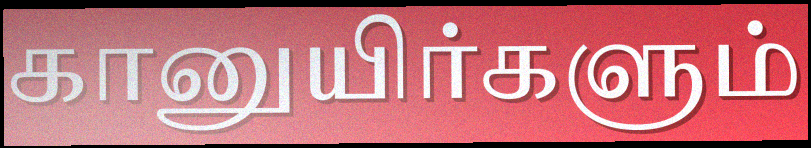
கானுயிர்களும்